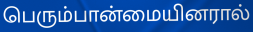
பெரும்பான்மையினரால்